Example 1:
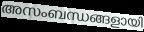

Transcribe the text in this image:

അസംബന്ധങ്ങളായി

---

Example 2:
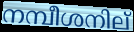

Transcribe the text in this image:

നമ്പീശനില്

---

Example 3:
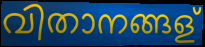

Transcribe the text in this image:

വിതാനങ്ങള്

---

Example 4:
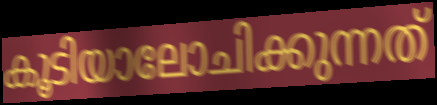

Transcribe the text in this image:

കൂടിയാലോചിക്കുന്നത്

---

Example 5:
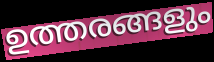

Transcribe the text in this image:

ഉത്തരങ്ങളും